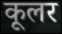
कूलर